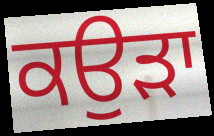
ਕਉੜਾ